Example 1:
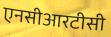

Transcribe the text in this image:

एनसीआरटीसी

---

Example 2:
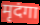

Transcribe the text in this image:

मृदंगा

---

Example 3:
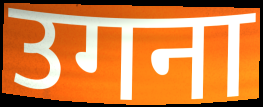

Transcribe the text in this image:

उगना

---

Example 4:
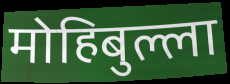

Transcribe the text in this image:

मोहिबुल्ला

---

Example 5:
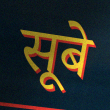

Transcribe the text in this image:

सूबे